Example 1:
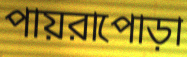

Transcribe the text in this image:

পায়রাপোড়া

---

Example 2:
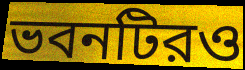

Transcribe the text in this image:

ভবনটিরও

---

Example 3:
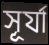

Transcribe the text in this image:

সূর্যা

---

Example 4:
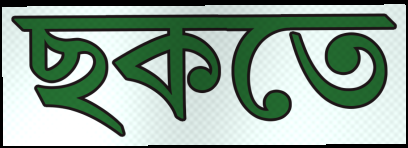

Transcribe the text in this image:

ছকতে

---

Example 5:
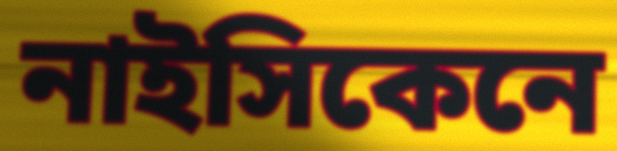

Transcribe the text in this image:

নাইসিকেনে